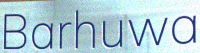
Barhuwa